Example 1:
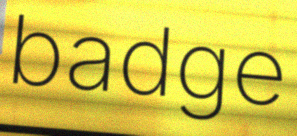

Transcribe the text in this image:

badge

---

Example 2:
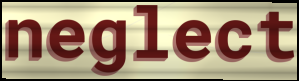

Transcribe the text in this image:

neglect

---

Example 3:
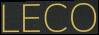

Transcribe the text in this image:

LECO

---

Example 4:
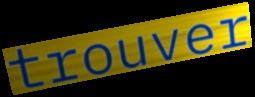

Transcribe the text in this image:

trouver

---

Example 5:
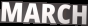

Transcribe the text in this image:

MARCH